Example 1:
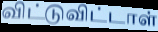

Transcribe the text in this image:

விட்டுவிட்டாள்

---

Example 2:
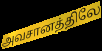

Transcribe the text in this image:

அவசானத்திலே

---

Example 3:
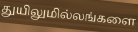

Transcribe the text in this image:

துயிலுமில்லங்களை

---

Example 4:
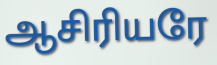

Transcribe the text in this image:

ஆசிரியரே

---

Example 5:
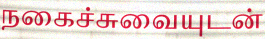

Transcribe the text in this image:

நகைச்சுவையுடன்